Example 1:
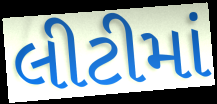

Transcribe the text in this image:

લીટીમાં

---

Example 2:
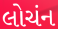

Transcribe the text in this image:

લોચંન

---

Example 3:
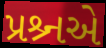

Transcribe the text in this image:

પ્રશ્ર્નએ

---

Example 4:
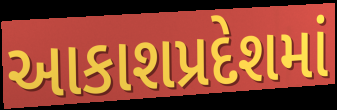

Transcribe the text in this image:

આકાશપ્રદેશમાં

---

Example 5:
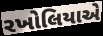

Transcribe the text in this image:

રખોલિયાએ